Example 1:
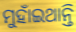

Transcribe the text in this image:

ମୁହାଁଇଥାନ୍ତି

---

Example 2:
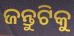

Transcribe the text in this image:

ଜନ୍ତୁଟିକୁ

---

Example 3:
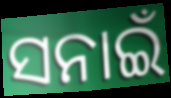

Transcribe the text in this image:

ସନାଇଁ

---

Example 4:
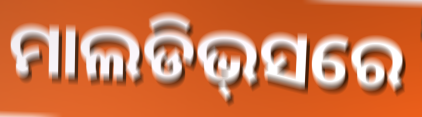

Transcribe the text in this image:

ମାଲଡିଭ୍‌ସରେ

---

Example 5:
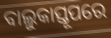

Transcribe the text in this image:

ବାଲୁକାସ୍ତୂପରେ